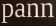
pann